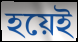
হয়েই